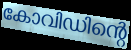
കോവിഡിന്റെ